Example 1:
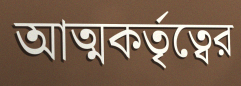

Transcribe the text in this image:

আত্মকর্তৃত্বের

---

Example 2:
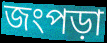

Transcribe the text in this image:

জংপড়া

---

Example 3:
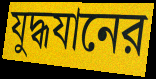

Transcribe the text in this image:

যুদ্ধযানের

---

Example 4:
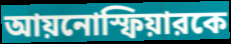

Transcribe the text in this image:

আয়নোস্ফিয়ারকে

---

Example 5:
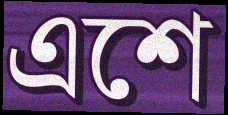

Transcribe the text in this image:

এশে